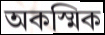
অকস্মিক